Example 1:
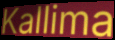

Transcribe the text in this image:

Kallima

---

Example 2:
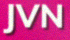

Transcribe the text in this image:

JVN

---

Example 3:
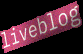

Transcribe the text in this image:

liveblog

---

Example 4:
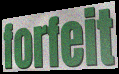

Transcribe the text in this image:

forfeit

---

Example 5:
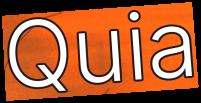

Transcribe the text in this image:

Quia